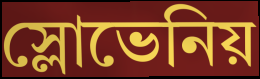
স্লোভেনিয়